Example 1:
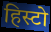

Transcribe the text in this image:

हिस्टो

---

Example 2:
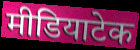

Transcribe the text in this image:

मीडियाटेक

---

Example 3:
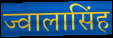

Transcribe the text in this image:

ज्वालासिंह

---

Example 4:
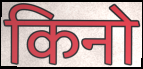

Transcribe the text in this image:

किनो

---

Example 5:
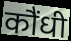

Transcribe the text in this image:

कौंधी